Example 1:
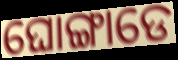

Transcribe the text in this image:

ଘୋଙ୍ଗାଡେ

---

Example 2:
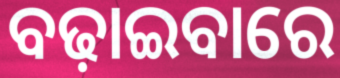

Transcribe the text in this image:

ବଢ଼ାଇବାରେ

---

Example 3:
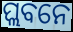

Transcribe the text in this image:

ପ୍ଲବନେ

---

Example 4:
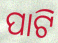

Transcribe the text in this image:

ପାଟି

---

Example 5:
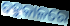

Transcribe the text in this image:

ବହୁକାଳରେ